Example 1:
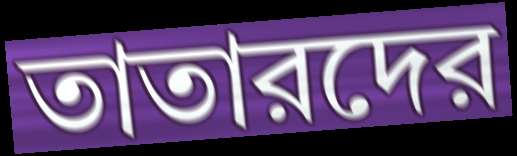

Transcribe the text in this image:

তাতারদের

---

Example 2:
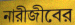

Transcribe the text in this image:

নারীজীবের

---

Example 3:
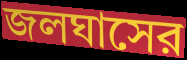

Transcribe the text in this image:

জলঘাসের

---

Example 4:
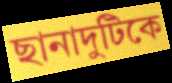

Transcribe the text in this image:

ছানাদুটিকে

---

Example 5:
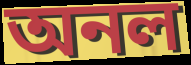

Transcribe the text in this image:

অনল